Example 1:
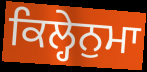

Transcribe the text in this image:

ਕਿਲ੍ਹੇਨੁਮਾ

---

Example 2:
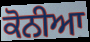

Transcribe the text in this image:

ਕੋਨੀਆ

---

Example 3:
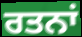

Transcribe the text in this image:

ਰਤਨਾਂ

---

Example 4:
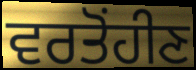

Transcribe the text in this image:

ਵਰਤੋਂਹੀਣ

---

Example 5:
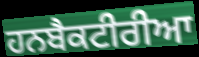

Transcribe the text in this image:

ਹਨਬੈਕਟੀਰੀਆ